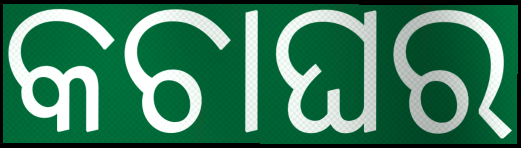
କଚାଘର